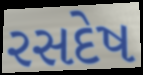
રસદેષ